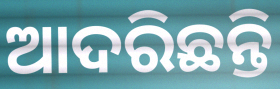
ଆଦରିଛନ୍ତି